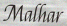
Malhar